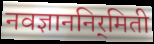
नवज्ञाननिर्मिती